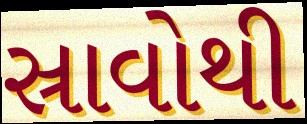
સ્રાવોથી